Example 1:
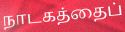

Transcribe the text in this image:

நாடகத்தைப்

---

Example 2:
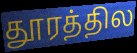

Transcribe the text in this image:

தூரத்தில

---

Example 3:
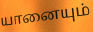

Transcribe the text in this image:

யானையும்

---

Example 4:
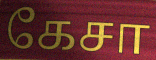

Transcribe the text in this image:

கேசா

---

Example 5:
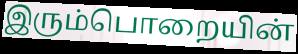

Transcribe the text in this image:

இரும்பொறையின்